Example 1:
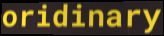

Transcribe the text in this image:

oridinary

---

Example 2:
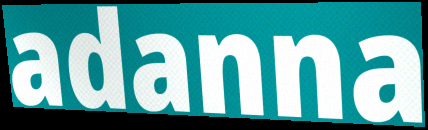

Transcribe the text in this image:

adanna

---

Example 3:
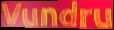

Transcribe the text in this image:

Vundru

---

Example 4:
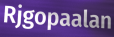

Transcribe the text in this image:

Rjgopaalan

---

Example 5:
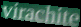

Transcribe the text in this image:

virachite